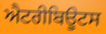
ਐਟਰੀਬਿਊਟਸ